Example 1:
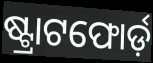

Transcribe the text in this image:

ଷ୍ଟ୍ରାଟଫୋର୍ଡ଼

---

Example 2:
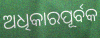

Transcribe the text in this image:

ଅଧିକାରପୂର୍ବକ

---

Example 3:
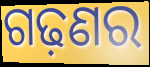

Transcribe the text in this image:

ଗଢ଼ଣର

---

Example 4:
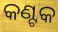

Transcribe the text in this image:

କଣ୍ଟକ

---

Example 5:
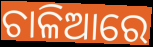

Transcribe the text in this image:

ଚାଳିଆରେ